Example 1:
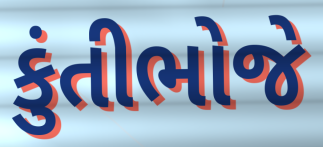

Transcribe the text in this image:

કુંતીભોજે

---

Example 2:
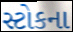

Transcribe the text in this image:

સ્ટોકના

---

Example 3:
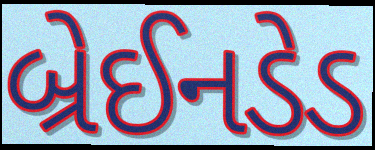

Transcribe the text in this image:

બ્રેઈનડેડ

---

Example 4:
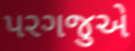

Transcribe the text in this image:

પરગજુએ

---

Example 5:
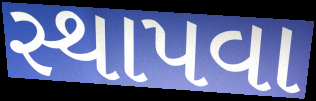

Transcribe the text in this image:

સ્થાપવા